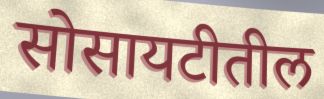
सोसायटीतील